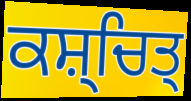
ਕਸ਼੍ਚਿਤ੍